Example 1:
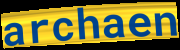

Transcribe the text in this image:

archaen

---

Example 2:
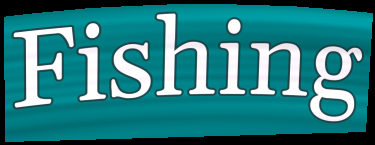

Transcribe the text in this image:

Fishing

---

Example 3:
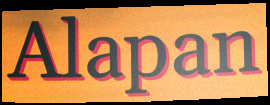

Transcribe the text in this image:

Alapan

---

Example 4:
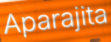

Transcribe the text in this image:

Aparajita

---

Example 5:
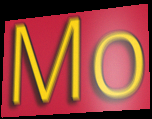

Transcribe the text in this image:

Mo